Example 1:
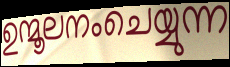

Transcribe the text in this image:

ഉന്മൂലനംചെയ്യുന്ന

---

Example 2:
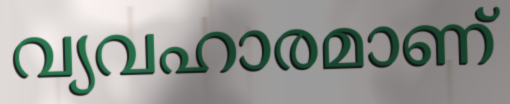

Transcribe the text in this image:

വ്യവഹാരമാണ്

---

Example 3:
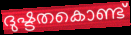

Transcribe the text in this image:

ദുഷ്ടതകൊണ്ട്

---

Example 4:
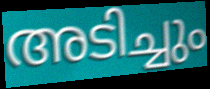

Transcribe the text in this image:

അടിച്ചും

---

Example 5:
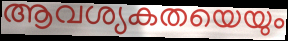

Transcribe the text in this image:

ആവശ്യകതയെയും